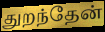
துறந்தேன்